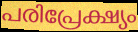
പരിപ്രേക്ഷ്യം